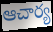
ఆచార్య